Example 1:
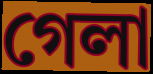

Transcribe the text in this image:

গেলা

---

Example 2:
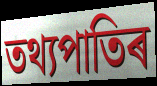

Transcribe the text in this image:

তথ্যপাতিৰ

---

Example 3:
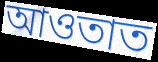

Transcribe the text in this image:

আওতাত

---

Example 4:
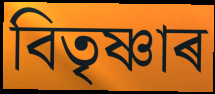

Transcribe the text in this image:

বিতৃষ্ণাৰ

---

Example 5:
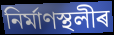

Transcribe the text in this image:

নিৰ্মাণস্থলীৰ